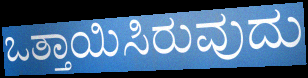
ಒತ್ತಾಯಿಸಿರುವುದು